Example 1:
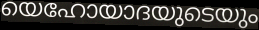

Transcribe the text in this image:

യെഹോയാദയുടെയും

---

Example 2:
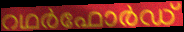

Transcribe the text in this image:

റഥർഫോർഡ്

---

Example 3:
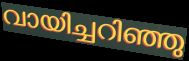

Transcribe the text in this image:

വായിച്ചറിഞ്ഞു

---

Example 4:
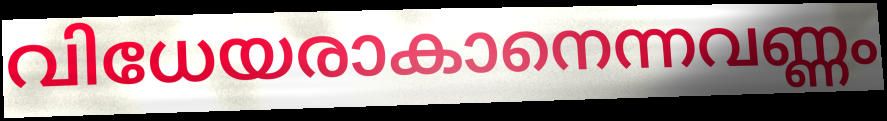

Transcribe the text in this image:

വിധേയരാകാനെന്നവണ്ണം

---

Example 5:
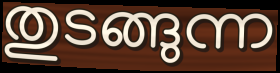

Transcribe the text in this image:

തുടങ്ങുന്ന